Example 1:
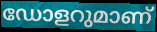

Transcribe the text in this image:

ഡോളറുമാണ്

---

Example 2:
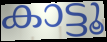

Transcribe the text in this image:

കാട്ടൂ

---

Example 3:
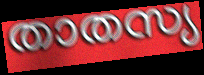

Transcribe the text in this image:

താതസ്യ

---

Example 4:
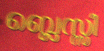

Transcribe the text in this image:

ബ്ലെസ്സി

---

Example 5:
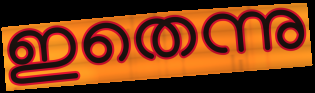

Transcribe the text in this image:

ഇതെന്നു